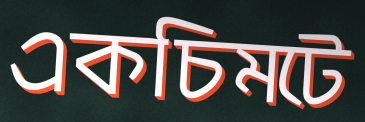
একচিমটে